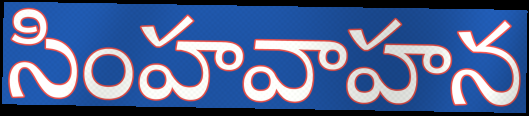
సింహవాహన